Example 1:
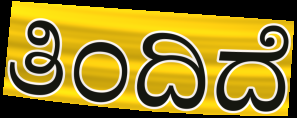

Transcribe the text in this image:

ತಿಂದಿದೆ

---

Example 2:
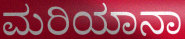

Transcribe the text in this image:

ಮರಿಯಾನಾ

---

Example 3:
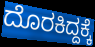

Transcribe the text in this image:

ದೊರಕಿದ್ದಕ್ಕೆ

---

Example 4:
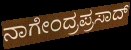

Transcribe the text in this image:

ನಾಗೇಂದ್ರಪ್ರಸಾದ್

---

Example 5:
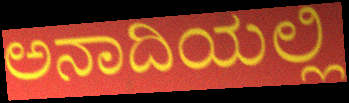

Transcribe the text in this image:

ಅನಾದಿಯಲ್ಲಿ